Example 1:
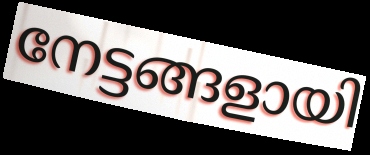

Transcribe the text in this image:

നേട്ടങ്ങളായി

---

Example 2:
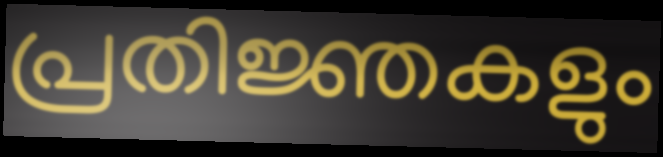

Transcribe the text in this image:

പ്രതിജ്ഞകളും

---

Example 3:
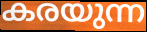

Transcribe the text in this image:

കരയുന്ന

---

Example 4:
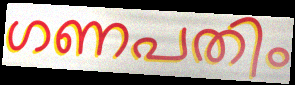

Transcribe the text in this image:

ഗണപതിം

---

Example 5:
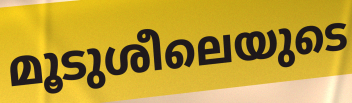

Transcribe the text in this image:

മൂടുശീലെയുടെ